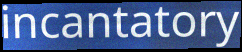
incantatory